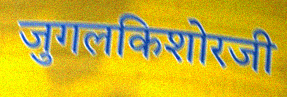
जुगलकिशोरजी